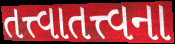
તત્ત્વાતત્ત્વના